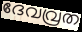
ദേവവ്രത